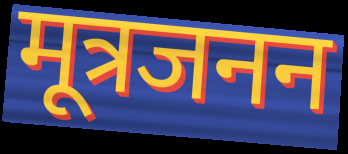
मूत्रजनन